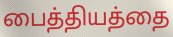
பைத்தியத்தை